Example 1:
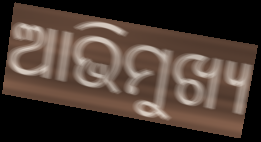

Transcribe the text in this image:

ଆଭିମୁଖ୍ୟ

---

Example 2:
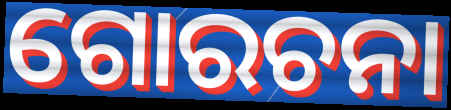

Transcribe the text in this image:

ଗୋରଚନା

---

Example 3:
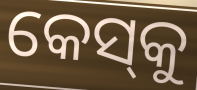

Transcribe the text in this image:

କେସ୍‌କୁ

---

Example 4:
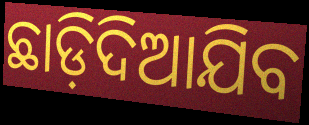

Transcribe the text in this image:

ଛାଡ଼ିଦିଆଯିବ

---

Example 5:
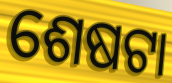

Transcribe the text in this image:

ଶେଷଟା